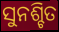
ସୁନଶ୍ଚିତ